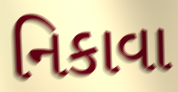
નિકાવા